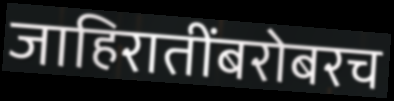
जाहिरातींबरोबरच